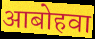
आबोहवा